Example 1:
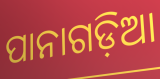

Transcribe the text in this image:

ପାନାଗଡ଼ିଆ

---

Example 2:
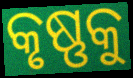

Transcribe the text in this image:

କୃଷ୍ଣକୁ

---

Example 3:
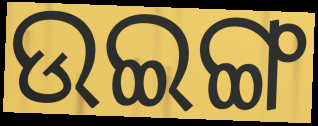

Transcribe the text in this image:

ଉଇଙ୍ଗ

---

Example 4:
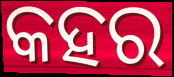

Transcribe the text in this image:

କହର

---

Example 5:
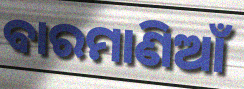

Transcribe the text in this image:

ବାରମାଣିଆଁ